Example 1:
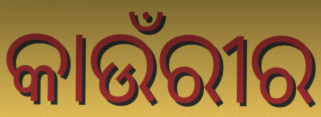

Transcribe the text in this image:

କାଉଁରୀର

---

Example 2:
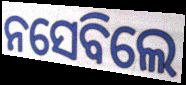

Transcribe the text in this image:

ନସେବିଲେ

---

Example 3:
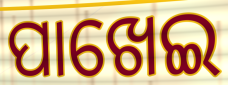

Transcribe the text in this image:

ପାଖେଇ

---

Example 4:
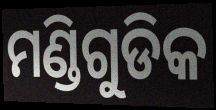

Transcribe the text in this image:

ମଣ୍ଡିଗୁଡିକ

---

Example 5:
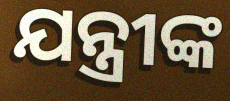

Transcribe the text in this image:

ଯନ୍ତ୍ରୀଙ୍କ